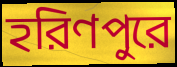
হরিণপুরে